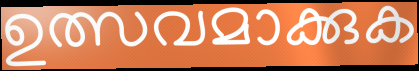
ഉത്സവമാക്കുക